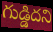
గుడ్డిదని